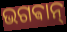
ଭଗଵାନ୍